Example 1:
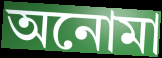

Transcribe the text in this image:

অনোমা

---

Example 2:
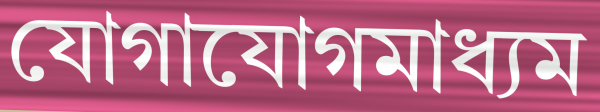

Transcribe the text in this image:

যোগাযোগমাধ্যম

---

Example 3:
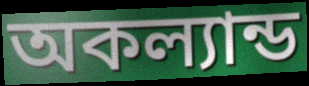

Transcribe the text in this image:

অকল্যান্ড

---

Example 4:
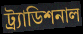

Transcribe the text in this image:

ট্র্যাডিশনাল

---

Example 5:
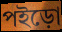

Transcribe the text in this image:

পইড়ো